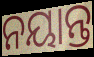
ନୟାନ୍ତ